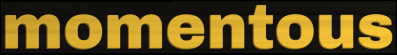
momentous